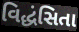
વિદ્ધંસિતા